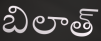
బిలాత్